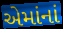
એમાંનાં